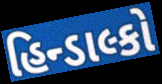
હિન્ડાલ્કો